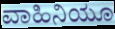
ವಾಹಿನಿಯೂ